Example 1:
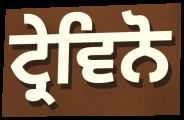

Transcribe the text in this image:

ਟ੍ਰੇਵਿਨੋ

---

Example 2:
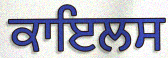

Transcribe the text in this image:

ਕਾਇਲਸ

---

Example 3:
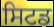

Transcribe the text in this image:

ਸਿਟਡ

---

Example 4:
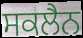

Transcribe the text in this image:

ਸਕਲੈਨ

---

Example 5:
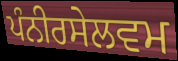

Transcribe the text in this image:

ਪੰਨੀਰਸੇਲਵਮ